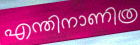
എന്തിനാണിത്ര